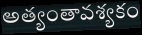
అత్యంతావశ్యకం